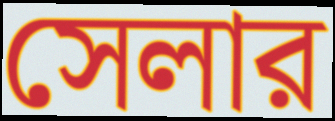
সেলার